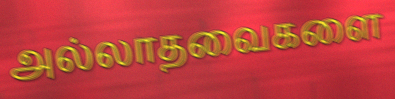
அல்லாதவைகளை